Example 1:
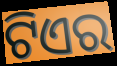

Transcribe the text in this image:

ଟିଏର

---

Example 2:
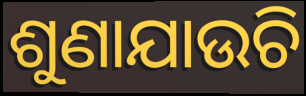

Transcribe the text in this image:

ଶୁଣାଯାଉଚି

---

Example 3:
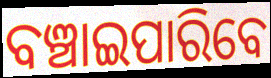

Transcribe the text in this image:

ବଞ୍ଚାଇପାରିବେ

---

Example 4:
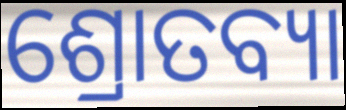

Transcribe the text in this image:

ଶ୍ରୋତବ୍ୟା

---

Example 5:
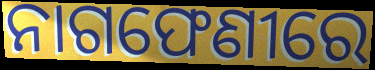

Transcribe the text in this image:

ନାଗଫେଣୀରେ